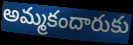
అమ్మకందారుకు